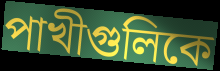
পাখীগুলিকে